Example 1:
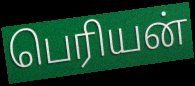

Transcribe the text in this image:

பெரியன்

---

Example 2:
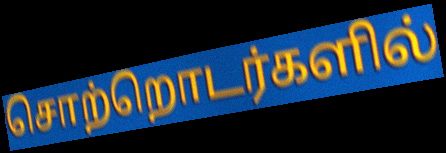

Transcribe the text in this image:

சொற்றொடர்களில்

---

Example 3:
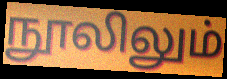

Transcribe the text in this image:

நூலிலும்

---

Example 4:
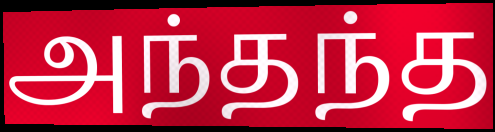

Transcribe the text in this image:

அந்தந்த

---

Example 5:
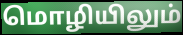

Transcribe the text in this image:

மொழியிலும்